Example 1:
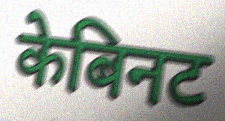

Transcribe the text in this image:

केबिनट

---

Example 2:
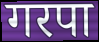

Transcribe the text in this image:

गरपा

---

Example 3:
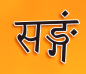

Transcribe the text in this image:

सङ्गं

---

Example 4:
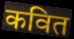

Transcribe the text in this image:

कवित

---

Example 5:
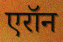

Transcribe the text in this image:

एरॉन